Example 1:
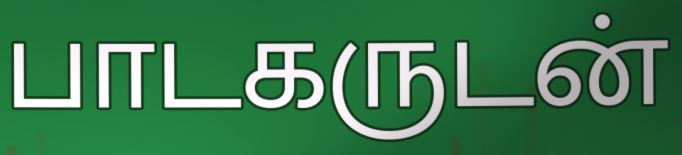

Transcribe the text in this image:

பாடகருடன்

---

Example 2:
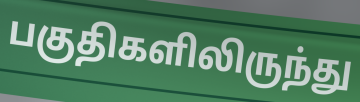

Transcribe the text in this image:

பகுதிகளிலிருந்து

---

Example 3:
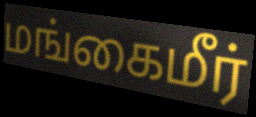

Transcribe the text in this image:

மங்கைமீர்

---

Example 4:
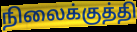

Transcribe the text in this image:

நிலைக்குத்தி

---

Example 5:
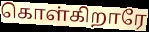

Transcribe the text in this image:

கொள்கிறாரே